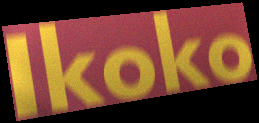
Ikoko